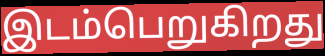
இடம்பெறுகிறது